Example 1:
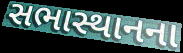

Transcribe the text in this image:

સભાસ્થાનના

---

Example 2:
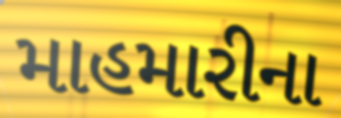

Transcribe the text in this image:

માહમારીના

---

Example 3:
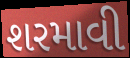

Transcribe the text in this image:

શરમાવી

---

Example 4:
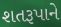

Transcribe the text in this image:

શતરૂપાને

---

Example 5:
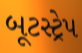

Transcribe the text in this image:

બૂટસ્ટ્રેપ